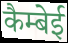
कैम्बेई